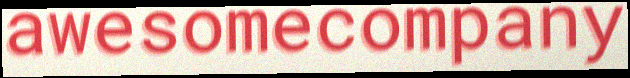
awesomecompany